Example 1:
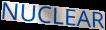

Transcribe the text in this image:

NUCLEAR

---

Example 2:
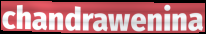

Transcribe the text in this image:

chandrawenina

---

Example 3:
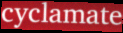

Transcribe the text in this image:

cyclamate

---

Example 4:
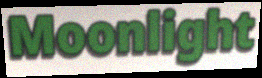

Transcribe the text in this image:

Moonlight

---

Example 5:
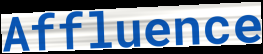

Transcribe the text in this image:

Affluence